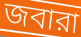
জবারা